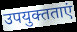
उपयुक्तताएं